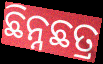
ଛିନ୍ନଛତ୍ର